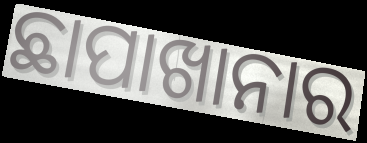
ଛାପାଖାନାର